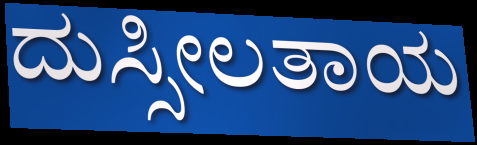
ದುಸ್ಸೀಲತಾಯ